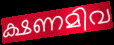
ക്ഷണമിവ